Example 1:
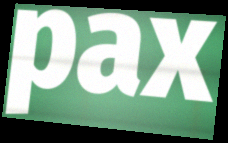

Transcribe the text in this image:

pax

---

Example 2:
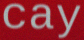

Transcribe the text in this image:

cay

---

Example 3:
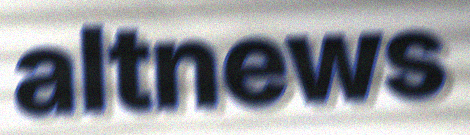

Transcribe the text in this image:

altnews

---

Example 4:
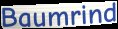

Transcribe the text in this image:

Baumrind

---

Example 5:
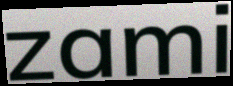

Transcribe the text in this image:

zami